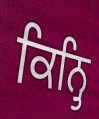
ਕਿਨ੍ਤਿ